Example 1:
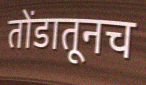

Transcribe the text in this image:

तोंडातूनच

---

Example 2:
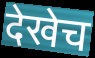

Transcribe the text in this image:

देखेच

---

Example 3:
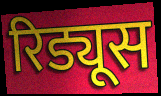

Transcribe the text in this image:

रिड्यूस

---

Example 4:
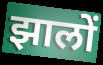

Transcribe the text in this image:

झालों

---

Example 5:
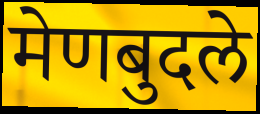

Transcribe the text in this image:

मेणबुदले